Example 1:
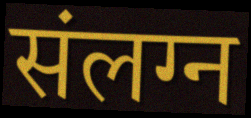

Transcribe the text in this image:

संलग्‍न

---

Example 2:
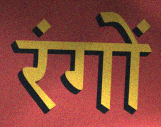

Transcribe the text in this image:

रंगों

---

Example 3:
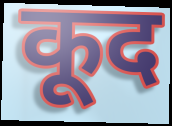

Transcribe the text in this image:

कूद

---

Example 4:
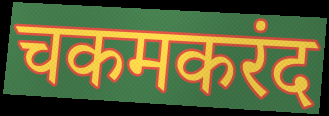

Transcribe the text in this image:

चकमकरंद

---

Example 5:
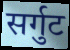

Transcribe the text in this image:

सर्गुट